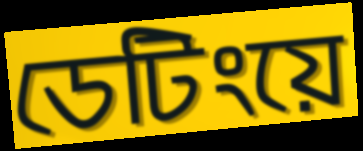
ডেটিংয়ে